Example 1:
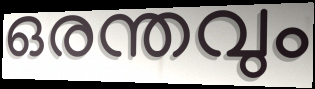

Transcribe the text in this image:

ഒരന്തവും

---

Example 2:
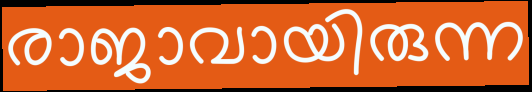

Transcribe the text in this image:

രാജാവായിരുന്ന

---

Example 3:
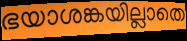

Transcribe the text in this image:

ഭയാശങ്കയില്ലാതെ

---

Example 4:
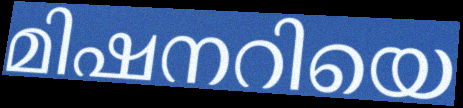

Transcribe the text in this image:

മിഷനറിയെ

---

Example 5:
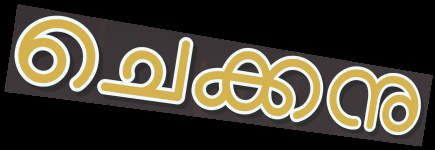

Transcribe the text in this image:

ചെക്കനു